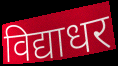
विद्याधर